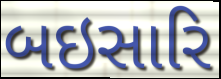
બઇસારિ